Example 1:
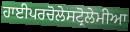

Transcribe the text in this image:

ਹਾਈਪਰਚੋਲੇਸਟ੍ਰੋਲੇਮੀਆ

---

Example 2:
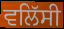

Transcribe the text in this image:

ਵਲਿੱਸੀ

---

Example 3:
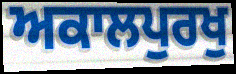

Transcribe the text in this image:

ਅਕਾਲਪੁਰਖੁ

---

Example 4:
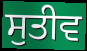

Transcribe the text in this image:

ਸੁਤੀਵ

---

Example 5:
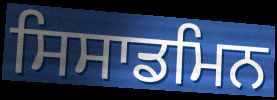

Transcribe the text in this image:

ਸਿਸਾਡਮਿਨ